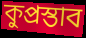
কুপ্রস্তাব